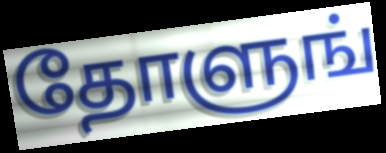
தோளுங்